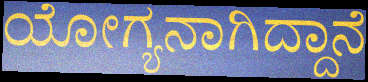
ಯೋಗ್ಯನಾಗಿದ್ದಾನೆ